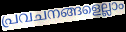
പ്രവചനങ്ങളെല്ലാം